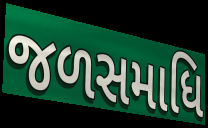
જળસમાધિ